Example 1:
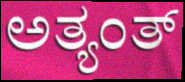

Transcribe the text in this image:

ಅತ್ಯಂತ್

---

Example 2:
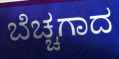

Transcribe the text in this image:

ಬೆಚ್ಚಗಾದ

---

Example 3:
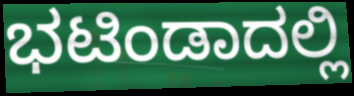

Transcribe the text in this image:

ಭಟಿಂಡಾದಲ್ಲಿ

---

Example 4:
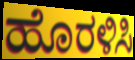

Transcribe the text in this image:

ಹೊರಳಿಸಿ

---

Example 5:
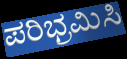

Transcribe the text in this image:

ಪರಿಭ್ರಮಿಸಿ